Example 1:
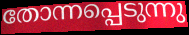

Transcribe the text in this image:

തോന്നപ്പെടുന്നു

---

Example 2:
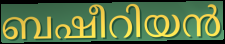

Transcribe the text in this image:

ബഷീറിയൻ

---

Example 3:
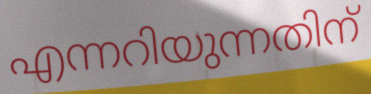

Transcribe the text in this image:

എന്നറിയുന്നതിന്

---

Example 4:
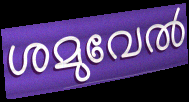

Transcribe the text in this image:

ശമുവേൽ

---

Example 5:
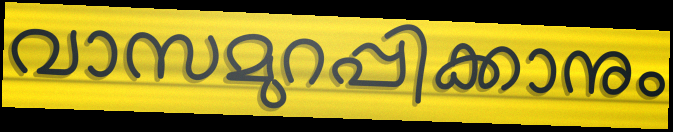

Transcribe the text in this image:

വാസമുറപ്പിക്കാനും